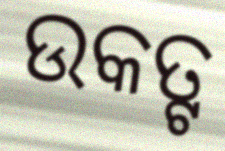
ଉକତ୍ଟ